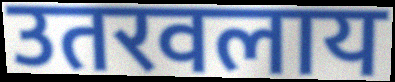
उतरवलाय